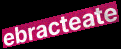
ebracteate